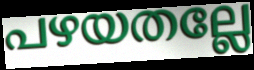
പഴയതല്ലേ